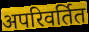
अपरिवर्तित